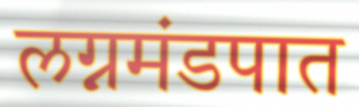
लग्नमंडपात